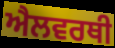
ਐਲਵਰਥੀ